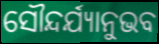
ସୌନ୍ଦର୍ଯ୍ୟାନୁଭବ